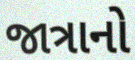
જાત્રાનો